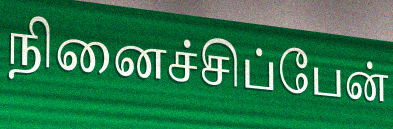
நினைச்சிப்பேன்